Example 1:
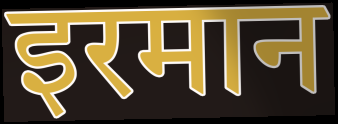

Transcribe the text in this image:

इरमान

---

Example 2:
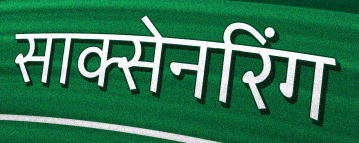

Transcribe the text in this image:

साक्सेनरिंग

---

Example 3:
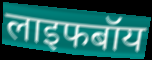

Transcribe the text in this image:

लाइफबॉय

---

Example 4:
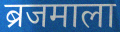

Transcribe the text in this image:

ब्रजमाला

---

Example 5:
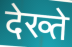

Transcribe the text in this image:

देख्ते